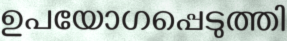
ഉപയോഗപ്പെടുത്തി